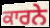
ਕਾਰਨੇ